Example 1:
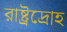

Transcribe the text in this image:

রাষ্ট্রদ্রোহ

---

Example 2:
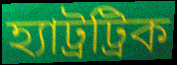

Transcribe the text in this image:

হ্যাট্রট্রিক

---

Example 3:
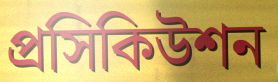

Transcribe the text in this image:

প্রসিকিউশন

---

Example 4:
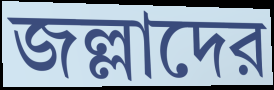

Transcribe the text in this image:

জল্লাদের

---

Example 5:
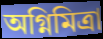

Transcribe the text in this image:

অগ্নিমিত্রা